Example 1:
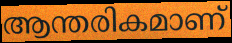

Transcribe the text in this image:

ആന്തരികമാണ്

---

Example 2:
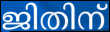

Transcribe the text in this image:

ജിതിന്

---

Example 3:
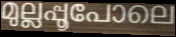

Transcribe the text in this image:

മുല്ലപ്പൂപോലെ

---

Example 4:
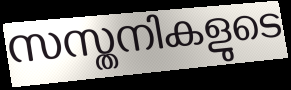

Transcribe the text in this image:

സസ്തനികളുടെ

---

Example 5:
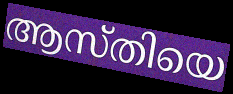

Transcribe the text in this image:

ആസ്തിയെ